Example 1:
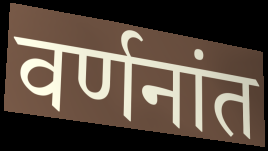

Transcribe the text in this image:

वर्णनांत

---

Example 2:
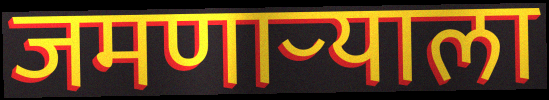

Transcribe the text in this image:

जमणाऱ्याला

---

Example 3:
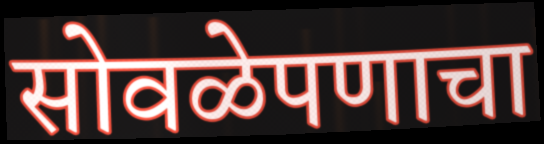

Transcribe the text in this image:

सोवळेपणाचा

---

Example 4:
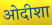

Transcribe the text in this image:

ओदीशा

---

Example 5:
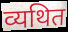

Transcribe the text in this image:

व्यथित